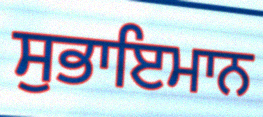
ਸੁਭਾਇਮਾਨ